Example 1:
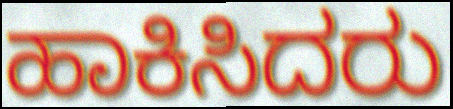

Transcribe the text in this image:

ಹಾಕಿಸಿದರು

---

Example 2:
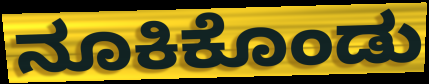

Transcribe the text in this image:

ನೂಕಿಕೊಂಡು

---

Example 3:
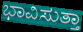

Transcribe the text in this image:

ಭಾವಿಸುತ್ತಾ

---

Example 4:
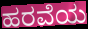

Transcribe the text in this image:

ಹರವೆಯ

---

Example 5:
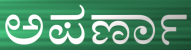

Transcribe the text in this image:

ಅಪರ್ಣಾ